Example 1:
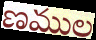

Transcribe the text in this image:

ణముల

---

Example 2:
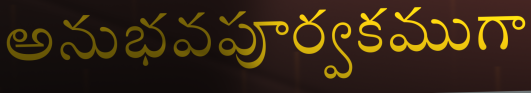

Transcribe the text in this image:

అనుభవపూర్వకముగా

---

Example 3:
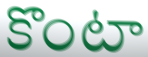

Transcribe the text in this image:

కొంటా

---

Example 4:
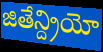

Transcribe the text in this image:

జితేన్ద్రియో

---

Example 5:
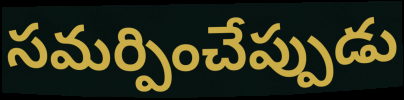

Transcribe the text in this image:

సమర్పించేప్పుడు